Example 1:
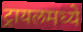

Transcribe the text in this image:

ट्रायलमध्ये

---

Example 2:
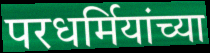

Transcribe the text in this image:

परधर्मियांच्या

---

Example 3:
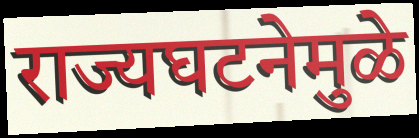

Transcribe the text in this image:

राज्यघटनेमुळे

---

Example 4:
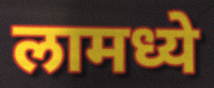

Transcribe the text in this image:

लामध्ये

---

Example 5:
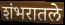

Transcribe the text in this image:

शंभरातले